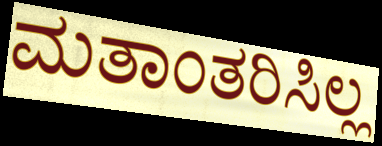
ಮತಾಂತರಿಸಿಲ್ಲ